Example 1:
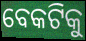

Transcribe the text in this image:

ବେକଟିକୁ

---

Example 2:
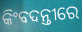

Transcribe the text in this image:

କିଂବଦନ୍ତୀରେ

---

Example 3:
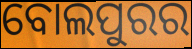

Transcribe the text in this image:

ବୋଲପୁରର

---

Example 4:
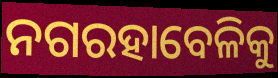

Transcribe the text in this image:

ନଗରହାବେଳିକୁ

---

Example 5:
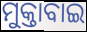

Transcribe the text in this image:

ମୁକ୍ତାବାଇ